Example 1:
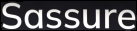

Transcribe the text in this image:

Sassure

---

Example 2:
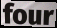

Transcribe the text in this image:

four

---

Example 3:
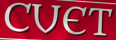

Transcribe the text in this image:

CUET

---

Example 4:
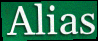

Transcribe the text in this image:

Alias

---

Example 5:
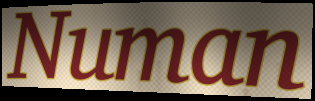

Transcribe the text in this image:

Numan